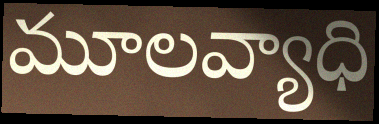
మూలవ్యాధి